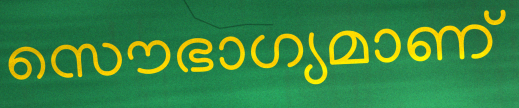
സൌഭാഗ്യമാണ്